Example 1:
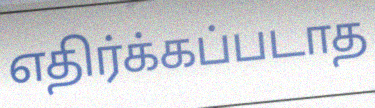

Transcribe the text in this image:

எதிர்க்கப்படாத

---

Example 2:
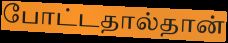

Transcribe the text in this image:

போட்டதால்தான்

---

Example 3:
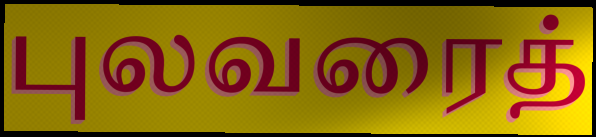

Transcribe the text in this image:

புலவரைத்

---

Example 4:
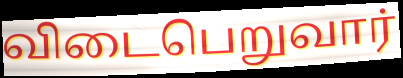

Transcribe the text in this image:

விடைபெறுவார்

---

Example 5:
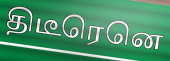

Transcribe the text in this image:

திடீரெனெ